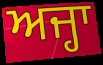
ਅਜ੍ਹਾ